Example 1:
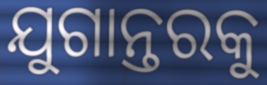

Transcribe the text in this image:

ଯୁଗାନ୍ତରକୁ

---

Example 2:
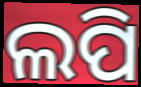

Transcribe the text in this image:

ଲପି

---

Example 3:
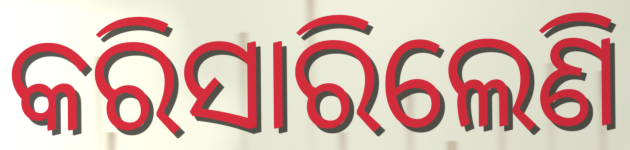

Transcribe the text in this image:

କରିସାରିଲେଣି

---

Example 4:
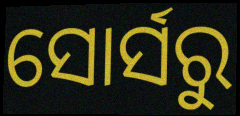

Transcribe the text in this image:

ସୋର୍ସରୁ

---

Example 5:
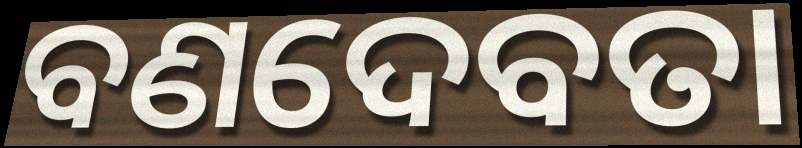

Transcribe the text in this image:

ବଣଦେବତା